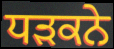
ਧਡ਼ਕਨੇ